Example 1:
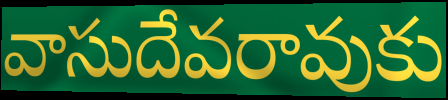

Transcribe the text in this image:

వాసుదేవరావుకు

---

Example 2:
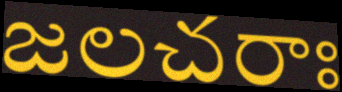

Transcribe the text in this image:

జలచరాః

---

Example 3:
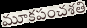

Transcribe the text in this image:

మూకపంచశతి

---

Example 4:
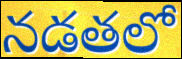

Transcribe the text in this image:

నడతలో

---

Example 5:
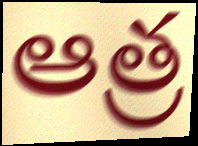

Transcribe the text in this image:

ఆత్ర